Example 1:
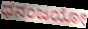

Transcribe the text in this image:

ಧನಂಜಯೋ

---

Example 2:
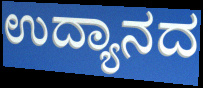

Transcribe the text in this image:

ಉದ್ಯಾನದ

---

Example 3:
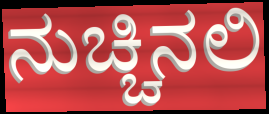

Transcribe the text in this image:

ನುಚ್ಚಿನಲಿ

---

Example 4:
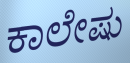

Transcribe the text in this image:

ಕಾಲೇಷು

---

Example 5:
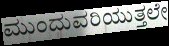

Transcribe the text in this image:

ಮುಂದುವರಿಯುತ್ತಲೇ